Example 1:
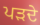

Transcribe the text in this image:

ਪੜਦੇ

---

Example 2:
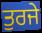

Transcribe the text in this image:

ਤੁਰਜੇ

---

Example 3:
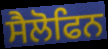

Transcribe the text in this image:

ਸੈਲੋਫਿਨ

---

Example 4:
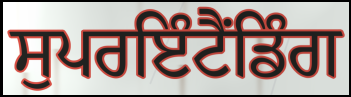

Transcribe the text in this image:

ਸੁਪਰਇੰਟੈਂਡਿੰਗ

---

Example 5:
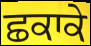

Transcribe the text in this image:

ਛਕਾਕੇ